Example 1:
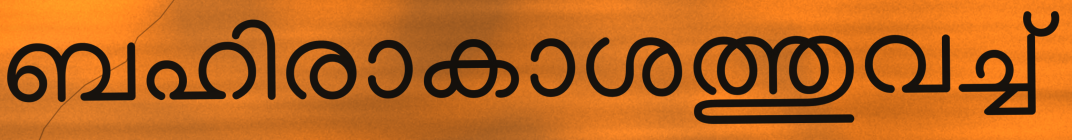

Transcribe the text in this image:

ബഹിരാകാശത്തുവച്ച്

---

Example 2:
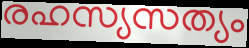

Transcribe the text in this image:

രഹസ്യസത്യം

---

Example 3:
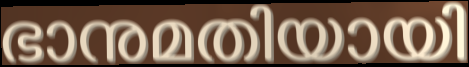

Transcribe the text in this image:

ഭാനുമതിയായി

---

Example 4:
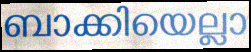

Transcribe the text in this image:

ബാക്കിയെല്ലാ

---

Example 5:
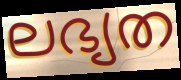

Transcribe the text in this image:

ലഭ്യത